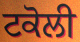
ਟਕੋਲੀ